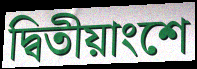
দ্বিতীয়াংশে